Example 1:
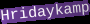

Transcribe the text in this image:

Hridaykamp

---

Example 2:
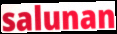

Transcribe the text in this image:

salunan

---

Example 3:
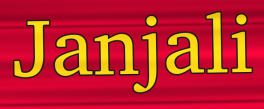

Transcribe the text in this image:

Janjali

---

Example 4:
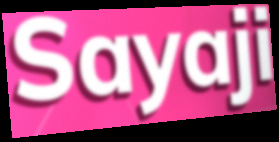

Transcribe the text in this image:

Sayaji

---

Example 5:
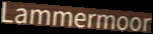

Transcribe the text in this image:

Lammermoor